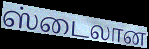
ஸ்டைலான